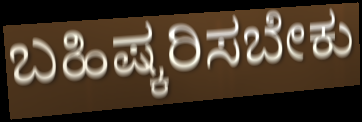
ಬಹಿಷ್ಕರಿಸಬೇಕು